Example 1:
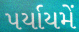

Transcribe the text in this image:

પર્યાયમેં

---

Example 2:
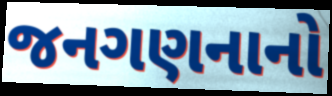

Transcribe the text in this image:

જનગણનાનો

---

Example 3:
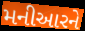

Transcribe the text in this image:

મનીઆરને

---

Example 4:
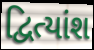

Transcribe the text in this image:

દ્વિત્યાંશ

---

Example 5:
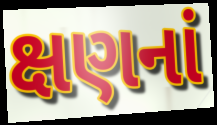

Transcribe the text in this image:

ક્ષણનાં